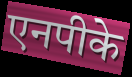
एनपीके